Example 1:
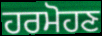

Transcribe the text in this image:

ਹਰਮੋਹਣ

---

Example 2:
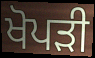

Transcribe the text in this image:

ਖੋਪੜੀ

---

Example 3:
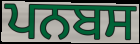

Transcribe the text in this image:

ਪਨਬਸ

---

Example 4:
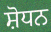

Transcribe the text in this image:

ਸ਼ੋਧਨ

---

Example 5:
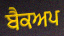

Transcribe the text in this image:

ਬੈਕਅਪ